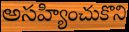
అసహ్యించుకొని